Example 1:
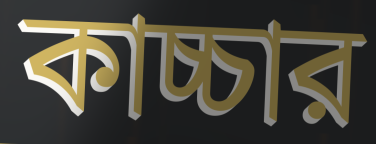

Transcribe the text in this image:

কাচ্চার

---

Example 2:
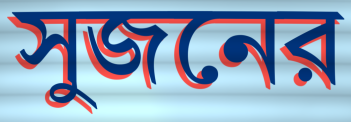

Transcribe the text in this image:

সুজনের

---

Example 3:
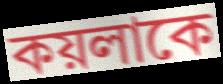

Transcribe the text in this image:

কয়লাকে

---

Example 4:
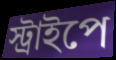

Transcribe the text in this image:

স্ট্রাইপে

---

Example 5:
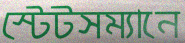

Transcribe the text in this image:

স্টেটসম্যানে